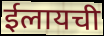
ईलायची